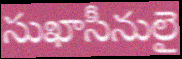
సుఖాసీనులై